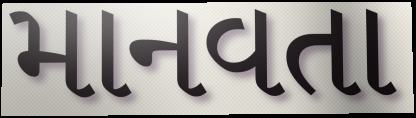
માનવતા